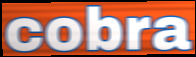
cobra